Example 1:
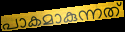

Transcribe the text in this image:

പാകമാകുന്നത്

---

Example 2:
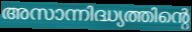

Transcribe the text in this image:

അസാന്നിദ്ധ്യത്തിന്റെ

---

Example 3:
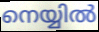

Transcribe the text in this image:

നെയ്യിൽ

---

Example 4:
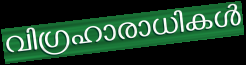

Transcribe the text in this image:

വിഗ്രഹാരാധികൾ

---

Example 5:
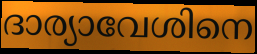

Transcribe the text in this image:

ദാര്യാവേശിനെ